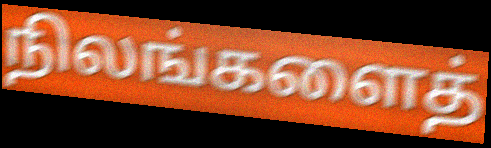
நிலங்களைத்